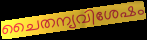
ചൈതന്യവിശേഷം